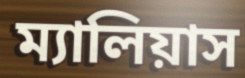
ম্যালিয়াস